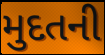
મુદતની